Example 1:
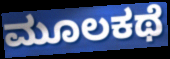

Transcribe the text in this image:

ಮೂಲಕಥೆ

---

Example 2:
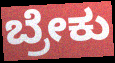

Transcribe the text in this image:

ಬ್ರೇಕು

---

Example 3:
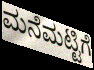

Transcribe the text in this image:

ಮನೆಮಟ್ಟಿಗೆ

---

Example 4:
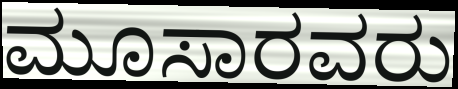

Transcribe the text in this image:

ಮೂಸಾರವರು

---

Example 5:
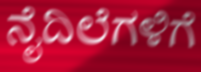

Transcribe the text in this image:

ನೈದಿಲೆಗಳಿಗೆ